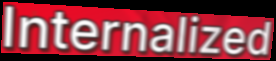
Internalized